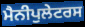
ਮੈਨੀਪੁਲੇਟਰਸ